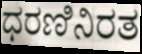
ಧರಣಿನಿರತ